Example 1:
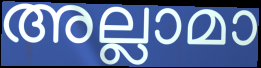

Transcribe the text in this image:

അല്ലാമാ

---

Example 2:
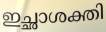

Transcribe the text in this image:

ഇച്ഛാശക്തി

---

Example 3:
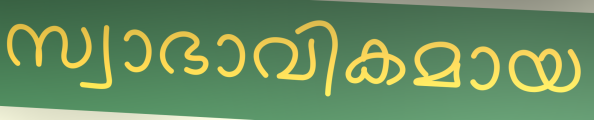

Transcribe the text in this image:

സ്വാഭാവികമായ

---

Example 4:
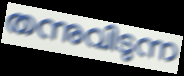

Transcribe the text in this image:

തന്നുവിടുന്ന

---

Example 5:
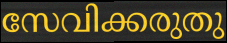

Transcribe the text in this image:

സേവിക്കരുതു